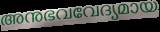
അനുഭവവേദ്യമായ